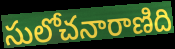
సులోచనారాణిది